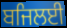
ਬਜਿਲਈ